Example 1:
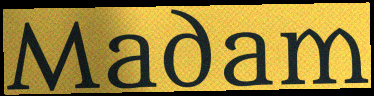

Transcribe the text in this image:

Madam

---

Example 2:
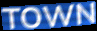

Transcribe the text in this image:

TOWN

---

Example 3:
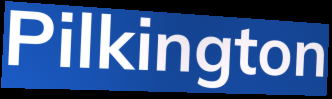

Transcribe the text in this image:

Pilkington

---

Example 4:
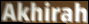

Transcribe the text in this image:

Akhirah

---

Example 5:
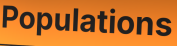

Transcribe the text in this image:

Populations